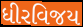
ધીરવિજય